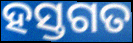
ହସ୍ତଗତ